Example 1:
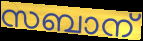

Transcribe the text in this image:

സബാന്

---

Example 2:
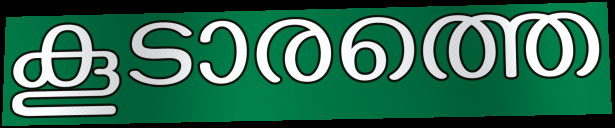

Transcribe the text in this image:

കൂടാരത്തെ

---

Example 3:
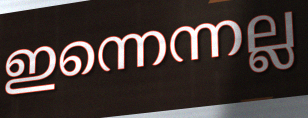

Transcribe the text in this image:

ഇന്നെന്നല്ല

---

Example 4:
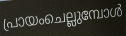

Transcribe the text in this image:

പ്രായംചെല്ലുമ്പോൾ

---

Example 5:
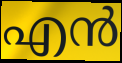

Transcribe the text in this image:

എൻ